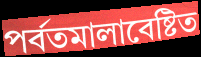
পর্বতমালাবেষ্টিত